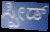
ಸ್ಪೀಡ್